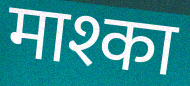
माश्का